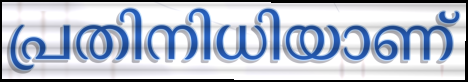
പ്രതിനിധിയാണ്